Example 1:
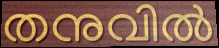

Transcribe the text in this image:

തനുവിൽ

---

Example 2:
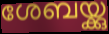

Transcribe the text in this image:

ശേബയ്ക്കു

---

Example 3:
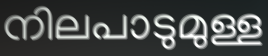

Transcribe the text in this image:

നിലപാടുമുള്ള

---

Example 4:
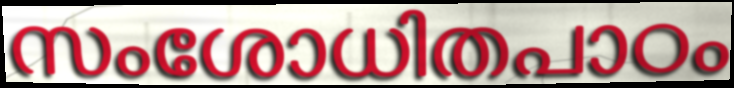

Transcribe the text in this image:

സംശോധിതപാഠം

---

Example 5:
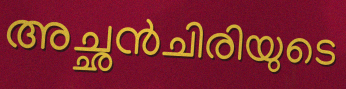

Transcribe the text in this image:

അച്ഛൻചിരിയുടെ